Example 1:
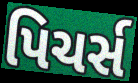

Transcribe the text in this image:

પિચર્સ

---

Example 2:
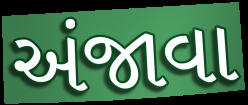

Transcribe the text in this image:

અંજાવા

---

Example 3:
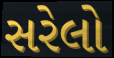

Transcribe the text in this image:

સરેલો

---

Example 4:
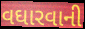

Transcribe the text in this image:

વઘારવાની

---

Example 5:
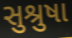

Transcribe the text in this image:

સુશ્રુષા